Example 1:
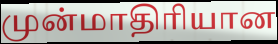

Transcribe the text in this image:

முன்மாதிரியான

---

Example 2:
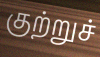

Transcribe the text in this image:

குற்றுச்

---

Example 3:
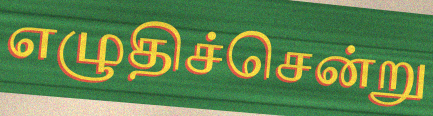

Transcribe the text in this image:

எழுதிச்சென்று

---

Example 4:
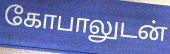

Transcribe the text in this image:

கோபாலுடன்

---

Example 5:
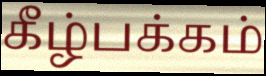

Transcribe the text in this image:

கீழ்பக்கம்